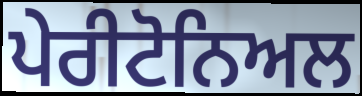
ਪੇਰੀਟੋਨਿਅਲ